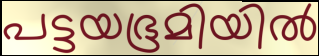
പട്ടയഭൂമിയിൽ